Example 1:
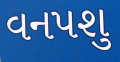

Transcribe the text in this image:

વનપશુ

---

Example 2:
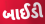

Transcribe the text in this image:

બાઈડી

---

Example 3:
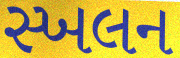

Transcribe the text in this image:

સ્ખલન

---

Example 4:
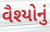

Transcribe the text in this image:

વૈશ્યોનું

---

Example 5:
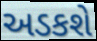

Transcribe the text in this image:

અડકશે